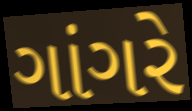
ગાંગરે